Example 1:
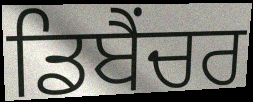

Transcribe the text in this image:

ਡਿਬੈਂਚਰ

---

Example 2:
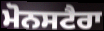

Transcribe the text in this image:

ਮੋਨਸਟੈਰਾ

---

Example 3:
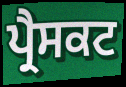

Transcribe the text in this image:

ਪ੍ਰੈਸਕਟ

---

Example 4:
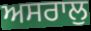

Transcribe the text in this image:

ਅਸਰਾਲੁ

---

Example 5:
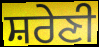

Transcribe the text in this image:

ਸ਼ਰੇਣੀ